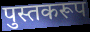
पुस्तकरूप